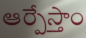
ఆర్పేస్తాం